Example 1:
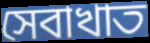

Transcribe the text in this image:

সেবাখাত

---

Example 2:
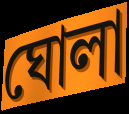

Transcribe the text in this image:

ঘোলা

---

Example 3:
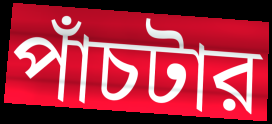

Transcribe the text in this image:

পাঁচটার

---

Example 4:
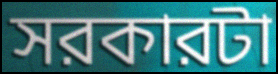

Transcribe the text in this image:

সরকারটা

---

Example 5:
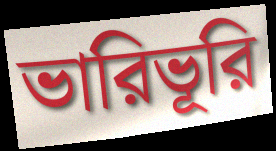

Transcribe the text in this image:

ভারিভূরি